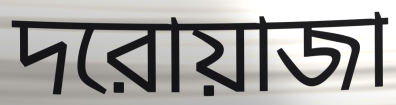
দরোয়াজা